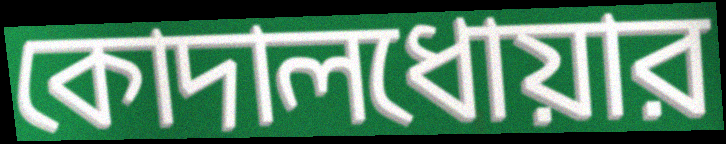
কোদালধোয়ার